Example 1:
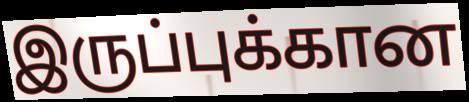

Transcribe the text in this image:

இருப்புக்கான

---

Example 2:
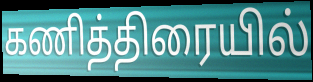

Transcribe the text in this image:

கணித்திரையில்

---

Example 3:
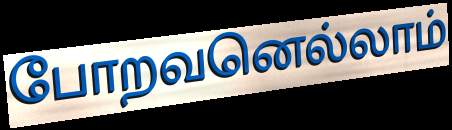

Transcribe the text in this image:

போறவனெல்லாம்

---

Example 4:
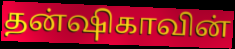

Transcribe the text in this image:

தன்ஷிகாவின்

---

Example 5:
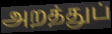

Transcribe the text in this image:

அறத்துப்